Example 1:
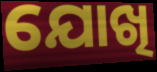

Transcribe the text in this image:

ଯୋଖି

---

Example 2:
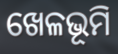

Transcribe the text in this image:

ଖେଳଭୂମି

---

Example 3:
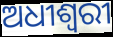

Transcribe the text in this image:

ଅଧୀଶ୍ୱରୀ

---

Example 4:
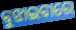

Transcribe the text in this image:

ବୁଝାଇବାରେ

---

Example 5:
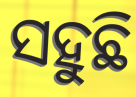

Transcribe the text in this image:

ସହୁଛି